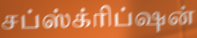
சப்ஸ்க்ரிப்ஷன்